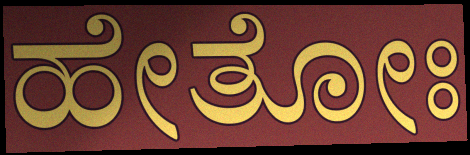
ಹೇತೋಃ